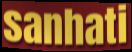
sanhati